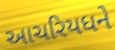
આચરિયધને